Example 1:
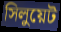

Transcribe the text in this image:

সিলুয়েট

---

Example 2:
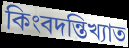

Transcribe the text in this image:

কিংবদন্তিখ্যাত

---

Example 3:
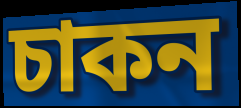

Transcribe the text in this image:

চাকন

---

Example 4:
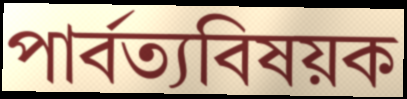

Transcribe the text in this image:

পার্বত্যবিষয়ক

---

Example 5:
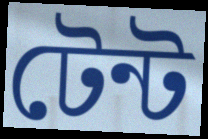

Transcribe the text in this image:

টেন্ট